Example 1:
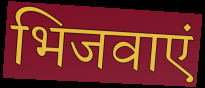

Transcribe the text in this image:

भिजवाएं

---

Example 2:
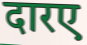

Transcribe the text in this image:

दारए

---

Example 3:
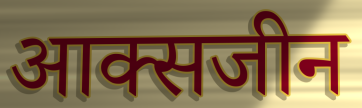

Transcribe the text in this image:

आक्सजीन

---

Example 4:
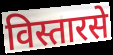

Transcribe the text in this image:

विस्तारसे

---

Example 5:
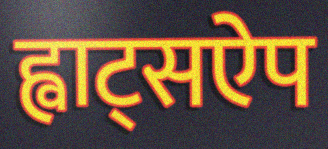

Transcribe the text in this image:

ह्वाट्सऐप